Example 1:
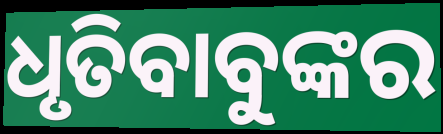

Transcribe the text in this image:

ଧୃତିବାବୁଙ୍କର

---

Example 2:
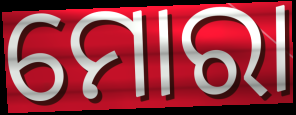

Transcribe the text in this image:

ମୋରା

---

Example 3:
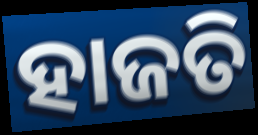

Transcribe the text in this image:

ହାଜତି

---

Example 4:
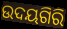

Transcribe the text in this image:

ଉଦୟଗିରି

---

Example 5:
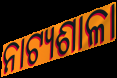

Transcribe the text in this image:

ନାଟ୍ୟଶାଳା